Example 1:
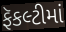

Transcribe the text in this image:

ફૅકલ્ટીમાં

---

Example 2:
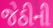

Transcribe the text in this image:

જેઠીની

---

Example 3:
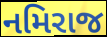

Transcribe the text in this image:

નમિરાજ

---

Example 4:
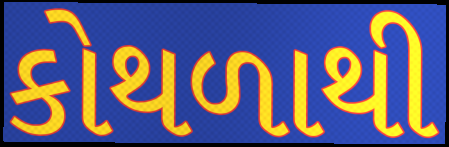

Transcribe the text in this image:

કોથળાથી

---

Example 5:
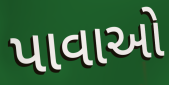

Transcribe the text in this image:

પાવાઓ